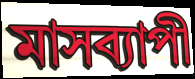
মাসব্যাপী